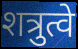
शत्रुत्वे